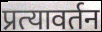
प्रत्‍यावर्तन